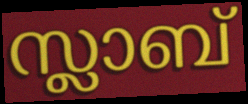
സ്ലാബ്